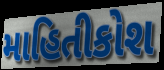
માહિતીકોશ